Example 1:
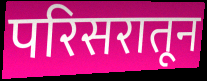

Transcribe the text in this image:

परिसरातून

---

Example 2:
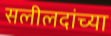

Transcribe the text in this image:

सलीलदांच्या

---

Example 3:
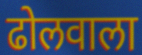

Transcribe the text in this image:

ढोलवाला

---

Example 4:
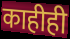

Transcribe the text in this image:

काहीही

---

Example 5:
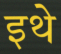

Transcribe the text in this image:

इथे